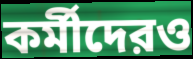
কর্মীদেরও